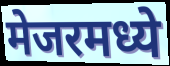
मेजरमध्ये